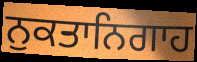
ਨੁਕਤਾਨਿਗਾਹ